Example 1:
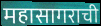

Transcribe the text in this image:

महासागराची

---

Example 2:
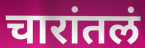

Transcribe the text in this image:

चारांतलं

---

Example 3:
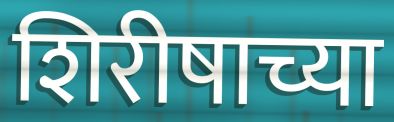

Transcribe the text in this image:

शिरीषाच्या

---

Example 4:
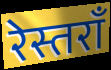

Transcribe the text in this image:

रेस्तराँ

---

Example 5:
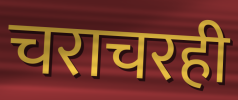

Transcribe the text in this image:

चराचरही